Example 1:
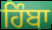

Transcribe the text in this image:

ਹਿੰਬਾ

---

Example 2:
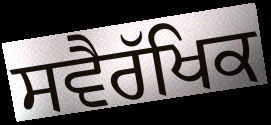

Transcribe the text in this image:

ਸਵੈਰੱਖਿਕ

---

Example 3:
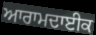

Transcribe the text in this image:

ਆਰਾਮਦਾਈਕ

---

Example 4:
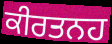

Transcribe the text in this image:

ਕੀਰਤਨਹ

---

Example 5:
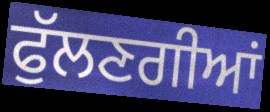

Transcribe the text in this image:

ਫੁੱਲਣਗੀਆਂ